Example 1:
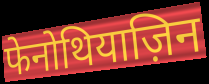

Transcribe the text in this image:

फेनोथियाज़िन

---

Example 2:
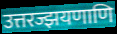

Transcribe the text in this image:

उत्तरज्झयणाणि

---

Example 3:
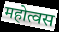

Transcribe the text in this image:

महोत्वस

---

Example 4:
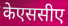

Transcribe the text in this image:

केएससीए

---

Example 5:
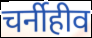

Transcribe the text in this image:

चर्नीहीव